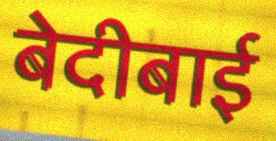
बेदीबाई